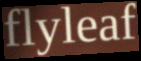
flyleaf